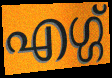
എഗ്ഗ്